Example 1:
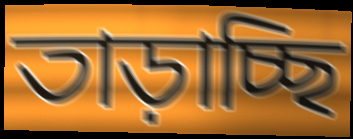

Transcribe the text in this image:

তাড়াচ্ছি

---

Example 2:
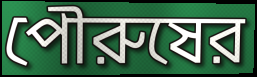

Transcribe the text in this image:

পৌরুষের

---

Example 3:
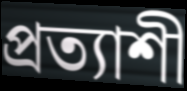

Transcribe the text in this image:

প্রত্যাশী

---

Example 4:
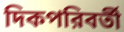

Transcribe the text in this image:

দিকপরিবর্তী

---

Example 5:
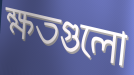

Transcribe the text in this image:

ক্ষতগুলো